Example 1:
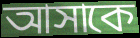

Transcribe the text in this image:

আসাকে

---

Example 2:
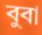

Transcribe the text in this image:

বুবা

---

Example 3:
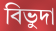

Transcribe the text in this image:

বিভুদা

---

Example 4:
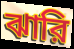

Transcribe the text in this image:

ঝারি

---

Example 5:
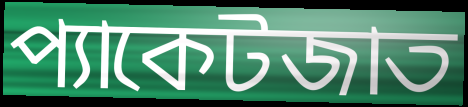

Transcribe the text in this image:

প্যাকেটজাত